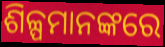
ଶିଳ୍ପମାନଙ୍କରେ